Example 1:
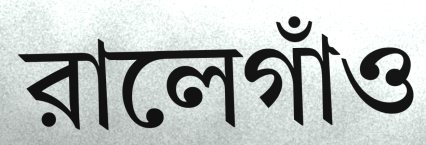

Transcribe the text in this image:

রালেগাঁও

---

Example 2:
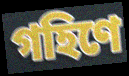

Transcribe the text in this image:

গহিণে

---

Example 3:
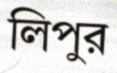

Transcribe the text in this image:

লিপুর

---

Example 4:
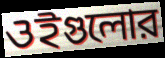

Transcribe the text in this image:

ওইগুলোর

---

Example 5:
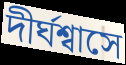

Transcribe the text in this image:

দীর্ঘশ্বাসে